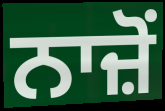
ਨਾਜ਼ੋਂ